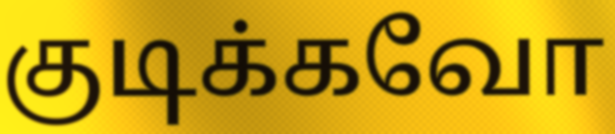
குடிக்கவோ